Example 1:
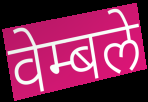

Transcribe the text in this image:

वेम्बले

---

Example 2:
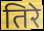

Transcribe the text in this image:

तिरे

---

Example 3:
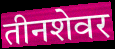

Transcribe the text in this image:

तीनशेवर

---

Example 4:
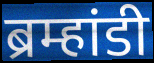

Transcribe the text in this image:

ब्रम्हांडी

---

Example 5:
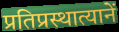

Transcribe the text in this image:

प्रतिप्रस्थात्यानें